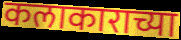
कलाकाराच्या